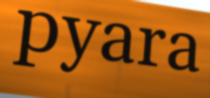
pyara